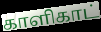
காளிகாட்